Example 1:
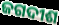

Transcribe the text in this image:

ଜଗଦୀଶ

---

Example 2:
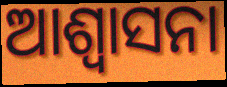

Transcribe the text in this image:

ଆଶ୍ଵାସନା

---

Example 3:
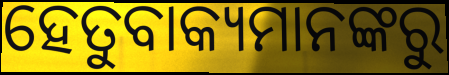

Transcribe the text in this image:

ହେତୁବାକ୍ୟମାନଙ୍କରୁ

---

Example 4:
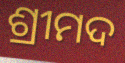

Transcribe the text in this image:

ଶ୍ରୀମଦ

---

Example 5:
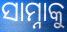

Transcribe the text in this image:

ସାମ୍ନାକୁ